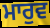
ਮਾਰੁਵ